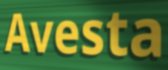
Avesta